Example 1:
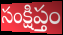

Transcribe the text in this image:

సంక్షిప్తం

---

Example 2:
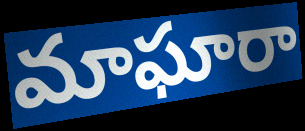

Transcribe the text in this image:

మాఘారా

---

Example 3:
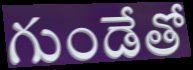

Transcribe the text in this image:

గుండేతో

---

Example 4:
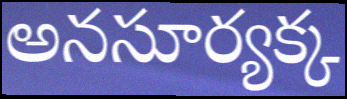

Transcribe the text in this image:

అనసూర్యక్క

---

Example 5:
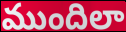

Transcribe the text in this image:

ముందిలా